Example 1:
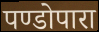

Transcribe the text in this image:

पण्डोपारा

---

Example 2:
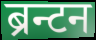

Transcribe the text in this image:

ब्रन्टन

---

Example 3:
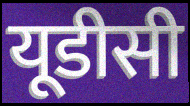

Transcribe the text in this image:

यूडीसी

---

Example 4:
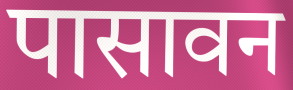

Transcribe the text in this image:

पासावन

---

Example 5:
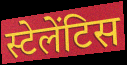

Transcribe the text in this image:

स्टेलेंटिस